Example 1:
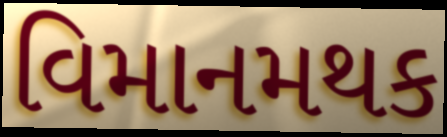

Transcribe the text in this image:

વિમાનમથક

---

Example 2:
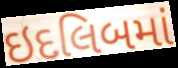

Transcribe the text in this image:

ઇદલિબમાં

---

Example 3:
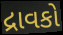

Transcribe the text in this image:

દ્રાવકો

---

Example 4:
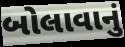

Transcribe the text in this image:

બોલાવાનું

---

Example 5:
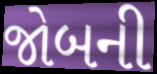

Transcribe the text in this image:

જોબની